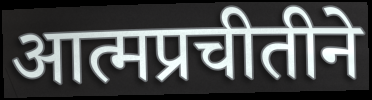
आत्मप्रचीतीने